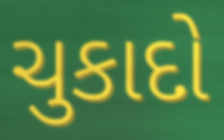
ચુકાદો